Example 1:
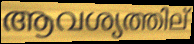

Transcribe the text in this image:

ആവശ്യത്തില്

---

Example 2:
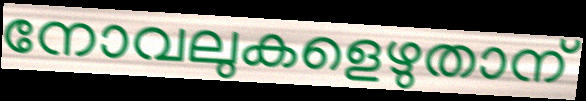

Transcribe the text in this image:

നോവലുകളെഴുതാന്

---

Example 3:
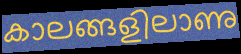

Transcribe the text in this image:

കാലങ്ങളിലാണു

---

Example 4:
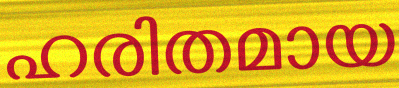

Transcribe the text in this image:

ഹരിതമായ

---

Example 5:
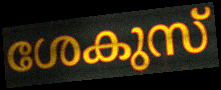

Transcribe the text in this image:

ശേകുസ്